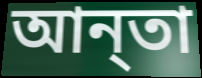
আন্‌তা